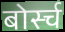
बोर्स्च